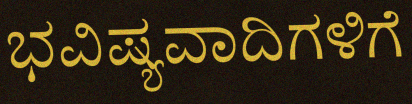
ಭವಿಷ್ಯವಾದಿಗಳಿಗೆ